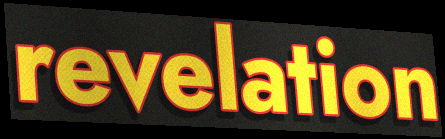
revelation